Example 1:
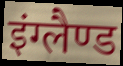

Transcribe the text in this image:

इंग्लैण्ड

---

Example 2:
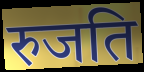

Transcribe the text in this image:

रुजति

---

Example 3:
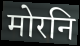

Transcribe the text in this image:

मोरनि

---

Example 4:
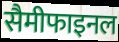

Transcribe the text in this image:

सैमीफाइनल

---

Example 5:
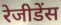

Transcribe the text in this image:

रेजीडेंस